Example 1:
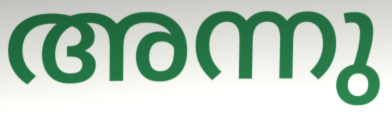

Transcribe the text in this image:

അന്നു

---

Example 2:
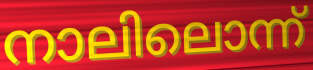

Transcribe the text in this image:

നാലിലൊന്ന്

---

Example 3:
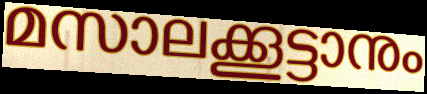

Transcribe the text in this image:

മസാലക്കൂട്ടാനും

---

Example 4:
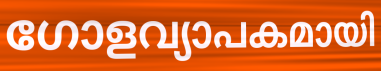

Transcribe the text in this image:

ഗോളവ്യാപകമായി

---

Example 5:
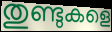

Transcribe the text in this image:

തുണ്ടുകളെ